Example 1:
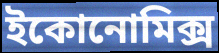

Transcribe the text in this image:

ইকোনোমিক্স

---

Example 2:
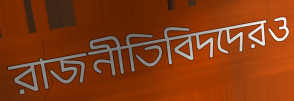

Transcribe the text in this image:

রাজনীতিবিদদেরও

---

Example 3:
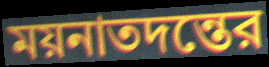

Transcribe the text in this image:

ময়নাতদন্তের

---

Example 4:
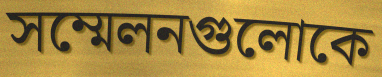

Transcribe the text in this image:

সম্মেলনগুলোকে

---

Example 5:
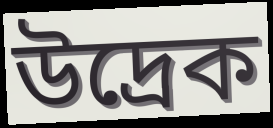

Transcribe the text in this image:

উদ্রেক